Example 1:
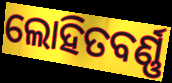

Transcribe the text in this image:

ଲୋହିତବର୍ଣ୍ଣ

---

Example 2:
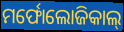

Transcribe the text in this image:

ମର୍ଫୋଲୋଜିକାଲ୍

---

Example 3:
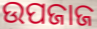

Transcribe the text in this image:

ଉପଜାଜ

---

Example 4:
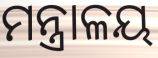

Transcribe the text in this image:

ମନ୍ତ୍ରାଳୟ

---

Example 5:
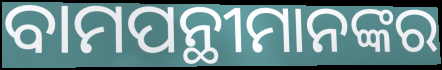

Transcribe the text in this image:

ବାମପନ୍ଥୀମାନଙ୍କର